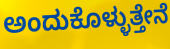
ಅಂದುಕೊಳ್ಳುತ್ತೇನೆ